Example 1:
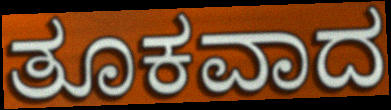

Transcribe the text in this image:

ತೂಕವಾದ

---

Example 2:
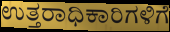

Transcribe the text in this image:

ಉತ್ತರಾಧಿಕಾರಿಗಳಿಗೆ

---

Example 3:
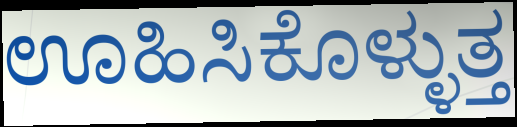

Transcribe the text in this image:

ಊಹಿಸಿಕೊಳ್ಳುತ್ತ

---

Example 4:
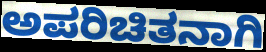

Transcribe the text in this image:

ಅಪರಿಚಿತನಾಗಿ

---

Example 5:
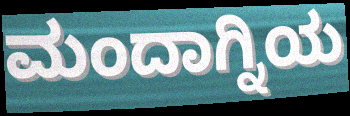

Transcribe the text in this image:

ಮಂದಾಗ್ನಿಯ